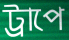
ট্রাপে